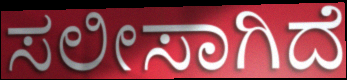
ಸಲೀಸಾಗಿದೆ